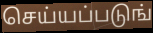
செய்யப்படுங்